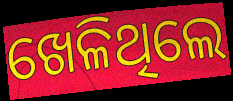
ଖେଳିଥିଲେ